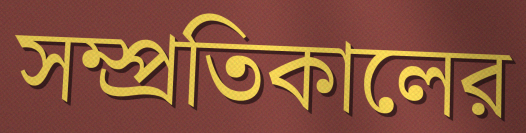
সম্প্রতিকালের